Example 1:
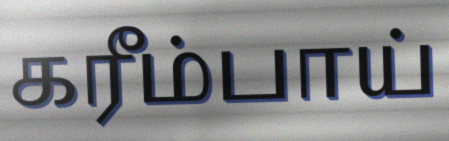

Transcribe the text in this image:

கரீம்பாய்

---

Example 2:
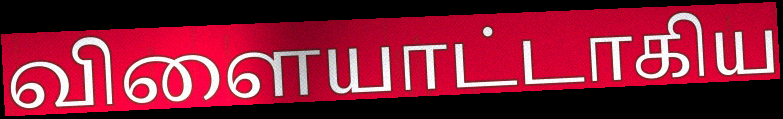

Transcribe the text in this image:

விளையாட்டாகிய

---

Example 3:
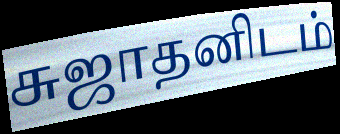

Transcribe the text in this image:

சுஜாதனிடம்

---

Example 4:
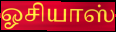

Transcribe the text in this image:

ஓசியாஸ்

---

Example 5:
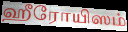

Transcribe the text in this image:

ஹீரோயிஸம்